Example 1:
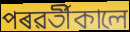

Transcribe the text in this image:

পৰৱৰ্তীকালে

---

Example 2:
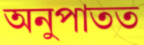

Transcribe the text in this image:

অনুপাতত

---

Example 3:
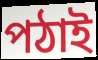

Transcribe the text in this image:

পঠাই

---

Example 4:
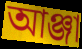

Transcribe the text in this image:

আঞ্জা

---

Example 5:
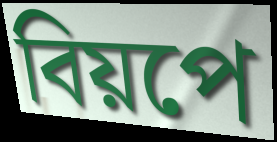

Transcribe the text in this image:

বিয়পে